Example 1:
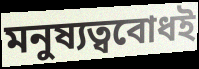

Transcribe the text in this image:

মনুষ্যত্ববোধই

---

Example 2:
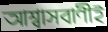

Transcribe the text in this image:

আশ্বাসবাণীই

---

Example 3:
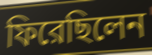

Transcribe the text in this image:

ফিরেছিলেন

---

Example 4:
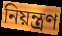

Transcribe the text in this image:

নিয়ন্ত্রণ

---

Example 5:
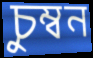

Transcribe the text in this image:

চুম্বন